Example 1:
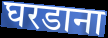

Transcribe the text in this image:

घरडाना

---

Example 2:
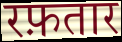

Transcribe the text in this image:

रफ़तार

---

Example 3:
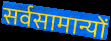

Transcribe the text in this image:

सर्वसामान्यों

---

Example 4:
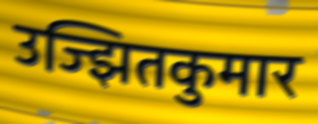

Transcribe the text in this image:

उज्झितकुमार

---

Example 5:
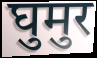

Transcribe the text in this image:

घुमुर